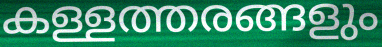
കള്ളത്തരങ്ങളും